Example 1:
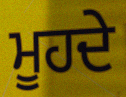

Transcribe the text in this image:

ਮੂਹਦੇ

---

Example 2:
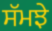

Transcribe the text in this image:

ਸੱਮਝੇ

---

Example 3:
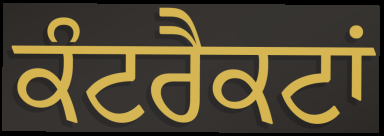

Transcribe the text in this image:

ਕੰਟਰੈਕਟਾਂ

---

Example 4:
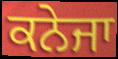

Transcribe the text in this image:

ਕਨੇਜਾ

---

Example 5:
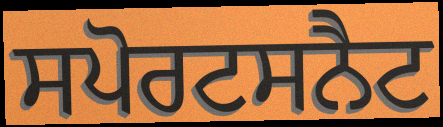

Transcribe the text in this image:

ਸਪੋਰਟਸਨੈਟ